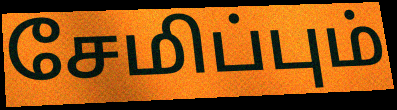
சேமிப்பும்